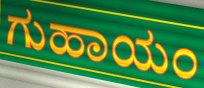
ಗುಹಾಯಂ